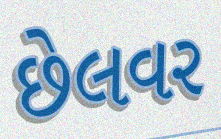
છેલવર